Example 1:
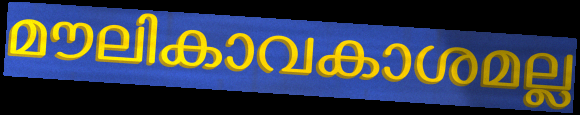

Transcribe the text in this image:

മൗലികാവകാശമല്ല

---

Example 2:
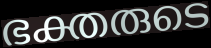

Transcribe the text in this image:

ഭക്തരുടെ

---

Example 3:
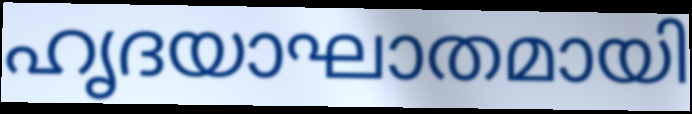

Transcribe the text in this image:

ഹൃദയാഘാതമായി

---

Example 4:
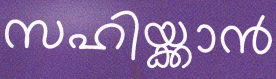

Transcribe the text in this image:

സഹിയ്ക്കാൻ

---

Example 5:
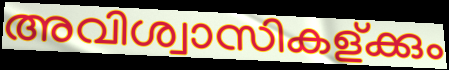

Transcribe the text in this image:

അവിശ്വാസികള്ക്കും